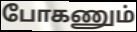
போகணும்